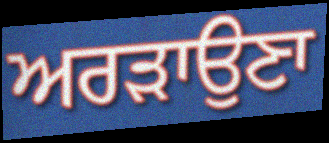
ਅਰੜਾਉਣਾ